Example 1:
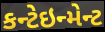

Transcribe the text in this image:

કન્ટેઇન્મેન્ટ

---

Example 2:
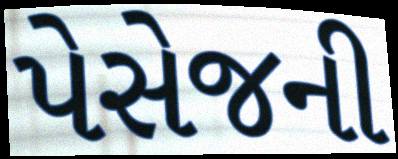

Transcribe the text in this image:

પેસેજની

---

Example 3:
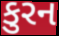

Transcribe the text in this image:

કુરન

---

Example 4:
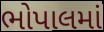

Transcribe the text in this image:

ભોપાલમાં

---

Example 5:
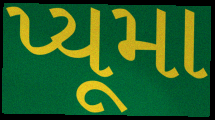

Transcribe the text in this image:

પ્યૂમા